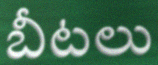
బీటలు